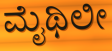
ಮೈಥಿಲೀ